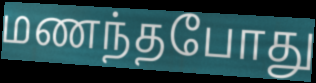
மணந்தபோது